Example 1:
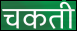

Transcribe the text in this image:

चकती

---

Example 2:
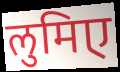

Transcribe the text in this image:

लुमिए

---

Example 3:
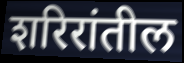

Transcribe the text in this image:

शरिरांतील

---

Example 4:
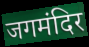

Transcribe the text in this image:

जगमंदिर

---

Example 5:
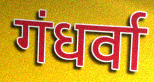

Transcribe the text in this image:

गंधर्वा